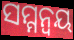
ସମ୍ମନ୍ୱୟ